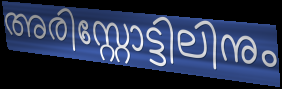
അരിസ്റ്റോട്ടിലിനും